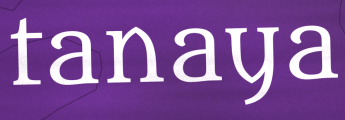
tanaya